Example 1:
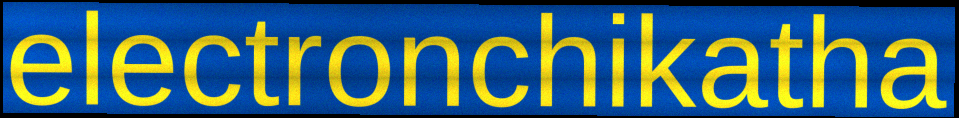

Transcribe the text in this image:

electronchikatha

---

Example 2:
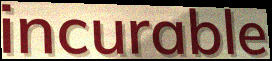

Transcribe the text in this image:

incurable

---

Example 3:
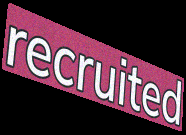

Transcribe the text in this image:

recruited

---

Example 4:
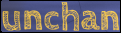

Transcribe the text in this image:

unchan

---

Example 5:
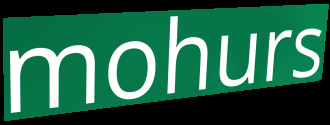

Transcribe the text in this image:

mohurs